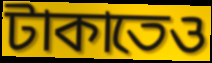
টাকাতেও